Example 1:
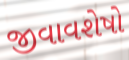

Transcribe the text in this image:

જીવાવશેષો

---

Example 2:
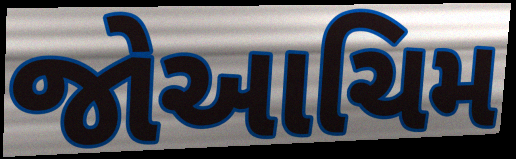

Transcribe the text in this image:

જોઆચિમ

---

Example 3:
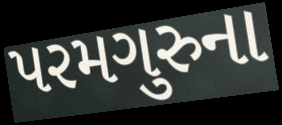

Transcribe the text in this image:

પરમગુરુના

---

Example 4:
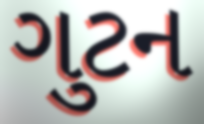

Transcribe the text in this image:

ગુટન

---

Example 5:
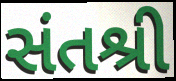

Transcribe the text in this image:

સંતશ્રી